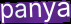
panya